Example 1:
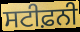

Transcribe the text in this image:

ਸਟੀਫ਼ਨੀ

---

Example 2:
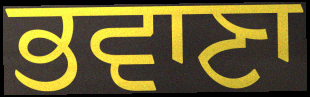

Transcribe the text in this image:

ਭਵਾਣਾ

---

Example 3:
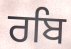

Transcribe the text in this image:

ਰਬਿ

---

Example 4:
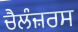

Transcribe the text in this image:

ਚੈਲੰਜ਼ਰਸ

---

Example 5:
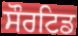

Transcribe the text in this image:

ਸੌਰਟਿਡ